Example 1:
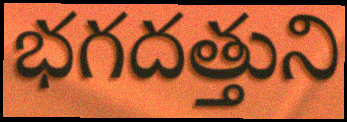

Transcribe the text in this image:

భగదత్తుని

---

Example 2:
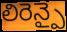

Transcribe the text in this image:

లిరెన్పై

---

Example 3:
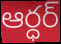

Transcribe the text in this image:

ఆర్ధర్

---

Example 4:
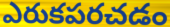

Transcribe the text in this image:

ఎరుకపరచడం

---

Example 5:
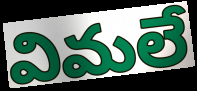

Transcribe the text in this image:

విమలే